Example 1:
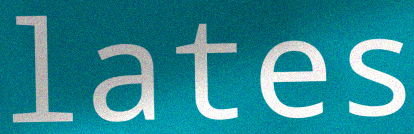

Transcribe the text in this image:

lates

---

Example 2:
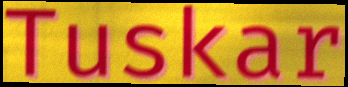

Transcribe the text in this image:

Tuskar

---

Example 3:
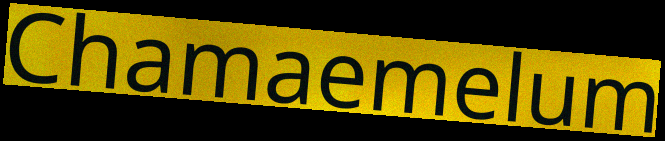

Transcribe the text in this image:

Chamaemelum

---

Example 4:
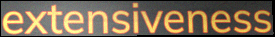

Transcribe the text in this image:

extensiveness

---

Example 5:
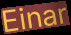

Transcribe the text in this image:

Einar